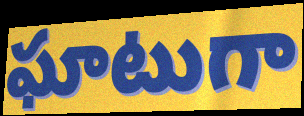
ఘాటుగా